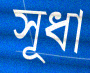
সূধা